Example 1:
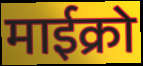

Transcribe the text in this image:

माईक्रो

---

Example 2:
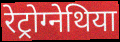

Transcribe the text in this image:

रेट्रोग्नेथिया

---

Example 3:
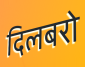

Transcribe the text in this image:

दिलबरो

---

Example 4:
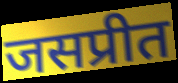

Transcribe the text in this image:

जसप्रीत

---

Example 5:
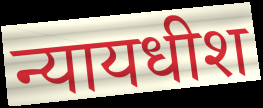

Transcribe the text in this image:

न्यायधीश